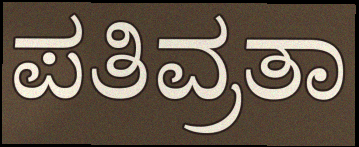
ಪತಿವ್ರತಾ